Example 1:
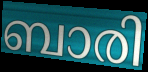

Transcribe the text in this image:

ബാരി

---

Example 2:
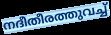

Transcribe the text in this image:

നദീതീരത്തുവച്ച്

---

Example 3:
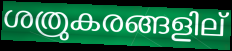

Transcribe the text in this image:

ശത്രുകരങ്ങളില്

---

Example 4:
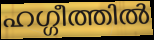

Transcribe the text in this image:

ഹഗ്ഗീത്തിൽ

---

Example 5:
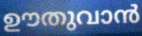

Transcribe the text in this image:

ഊതുവാൻ